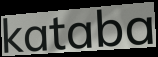
kataba